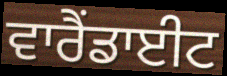
ਵਾਰੈਂਡਾਈਟ